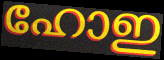
ഹോഇ